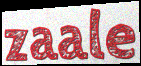
zaale